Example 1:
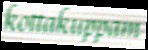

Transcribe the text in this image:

kottakuppam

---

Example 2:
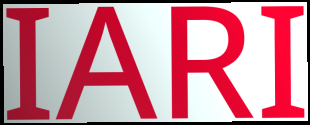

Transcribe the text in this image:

IARI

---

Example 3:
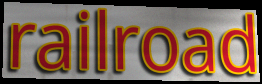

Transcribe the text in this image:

railroad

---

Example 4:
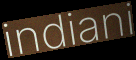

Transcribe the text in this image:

indiani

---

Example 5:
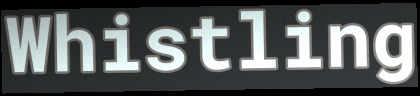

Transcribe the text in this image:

Whistling